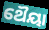
ଥୈୟା